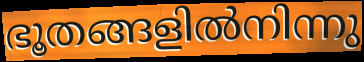
ഭൂതങ്ങളിൽനിന്നു